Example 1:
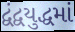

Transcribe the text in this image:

દ્વંદ્વયુદ્ધમાં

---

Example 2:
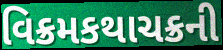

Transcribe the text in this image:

વિક્રમકથાચક્રની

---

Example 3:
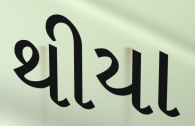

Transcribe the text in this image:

થીયા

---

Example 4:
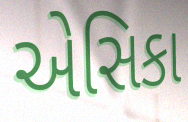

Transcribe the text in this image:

એસિકા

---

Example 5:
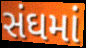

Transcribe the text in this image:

સંઘમાં